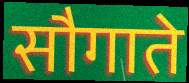
सौगाते